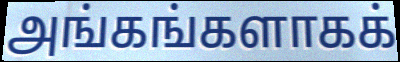
அங்கங்களாகக்